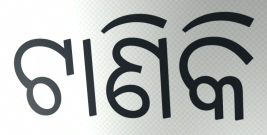
ଟାଣିକି